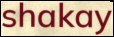
shakay